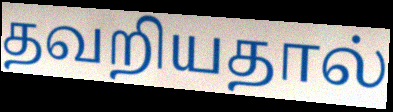
தவறியதால்